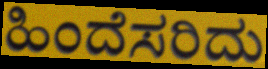
ಹಿಂದೆಸರಿದು